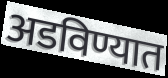
अडविण्यात